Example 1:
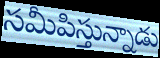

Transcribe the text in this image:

సమీపిస్తున్నాడు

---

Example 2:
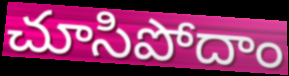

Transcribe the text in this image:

చూసిపోదాం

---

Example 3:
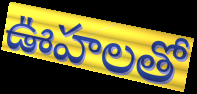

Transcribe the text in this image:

ఊహలతో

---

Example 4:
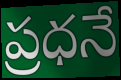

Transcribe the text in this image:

ప్రధనే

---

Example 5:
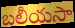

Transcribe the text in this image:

బలీయసా